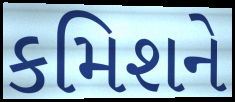
કમિશને